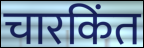
चारकिंत